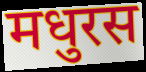
मधुरस